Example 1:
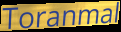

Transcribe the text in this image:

Toranmal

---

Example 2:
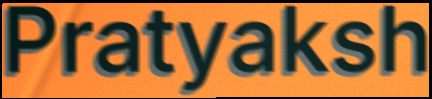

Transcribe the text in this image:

Pratyaksh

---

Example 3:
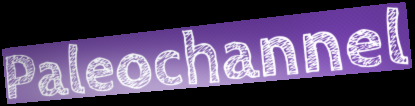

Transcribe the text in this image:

Paleochannel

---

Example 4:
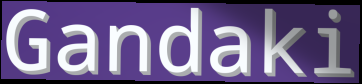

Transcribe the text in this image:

Gandaki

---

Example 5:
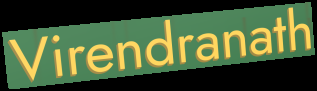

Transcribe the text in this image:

Virendranath